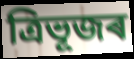
ত্ৰিভূজৰ